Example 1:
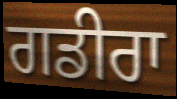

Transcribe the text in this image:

ਗਡੀਰਾ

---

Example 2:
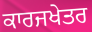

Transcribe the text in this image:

ਕਾਰਜਖੇਤਰ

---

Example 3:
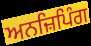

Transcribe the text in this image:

ਅਨਜ਼ਿਪਿੰਗ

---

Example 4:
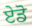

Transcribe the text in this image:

ਏਡੋ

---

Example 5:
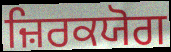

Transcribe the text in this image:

ਜ਼ਿਰਕਯੋਗ